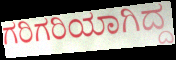
ಗರಿಗರಿಯಾಗಿದ್ದ